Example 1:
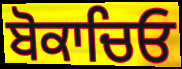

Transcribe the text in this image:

ਬੋਕਾਚਿਓ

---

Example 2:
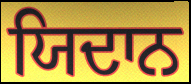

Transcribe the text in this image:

ਯਿਦਾਨ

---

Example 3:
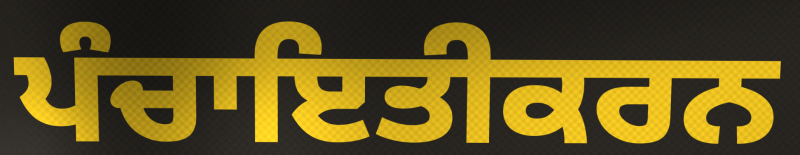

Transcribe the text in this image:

ਪੰਚਾਇਤੀਕਰਨ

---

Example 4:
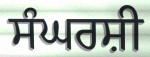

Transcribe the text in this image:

ਸੰਘਰਸ਼ੀ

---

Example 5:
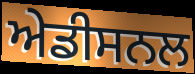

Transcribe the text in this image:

ਅੇਡੀਸਨਲ